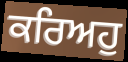
ਕਰਿਅਹੁ